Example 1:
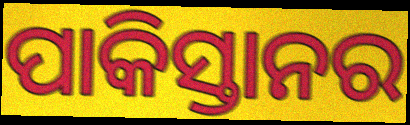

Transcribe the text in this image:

ପାକିସ୍ତାନର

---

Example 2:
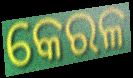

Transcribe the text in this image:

କେରଳ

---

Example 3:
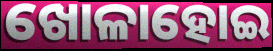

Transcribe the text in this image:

ଖୋଳାହୋଇ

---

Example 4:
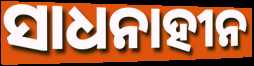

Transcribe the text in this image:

ସାଧନାହୀନ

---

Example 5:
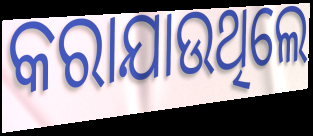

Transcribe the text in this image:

କରାଯାଉଥିଲେ